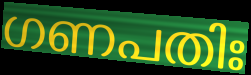
ഗണപതിഃ